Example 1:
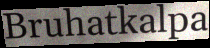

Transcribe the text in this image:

Bruhatkalpa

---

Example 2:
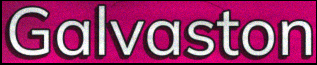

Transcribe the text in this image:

Galvaston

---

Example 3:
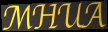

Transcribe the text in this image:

MHUA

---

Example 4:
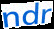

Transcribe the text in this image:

ndr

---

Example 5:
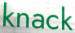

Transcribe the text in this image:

knack